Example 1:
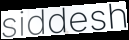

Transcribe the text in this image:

siddesh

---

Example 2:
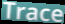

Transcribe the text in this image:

Trace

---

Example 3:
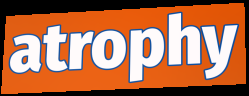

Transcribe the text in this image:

atrophy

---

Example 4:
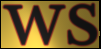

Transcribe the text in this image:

ws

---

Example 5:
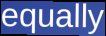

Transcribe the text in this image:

equally